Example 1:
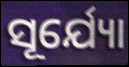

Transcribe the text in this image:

ସୂର୍ଯ୍ୟୋ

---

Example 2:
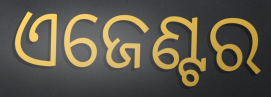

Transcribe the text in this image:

ଏଜେଣ୍ଟର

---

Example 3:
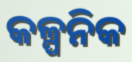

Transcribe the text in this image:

କଳ୍ପନିକ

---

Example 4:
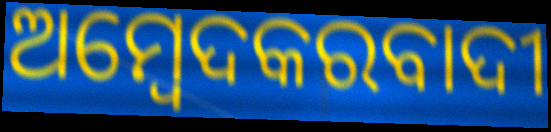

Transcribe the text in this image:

ଅମ୍ବେଦକରବାଦୀ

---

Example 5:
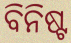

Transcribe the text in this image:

ବିନିଷ୍ଟ